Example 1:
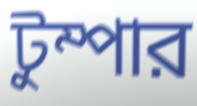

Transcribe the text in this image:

টুম্পার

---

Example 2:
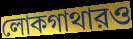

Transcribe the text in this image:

লোকগাথারও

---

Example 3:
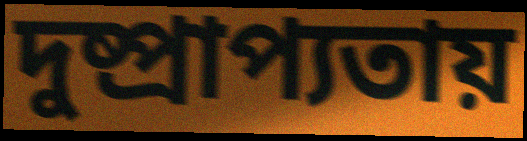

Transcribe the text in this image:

দুষ্প্রাপ্যতায়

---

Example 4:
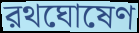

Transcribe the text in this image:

রথঘোষেণ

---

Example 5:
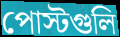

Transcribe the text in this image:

পোস্টগুলি